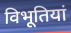
विभूतियां